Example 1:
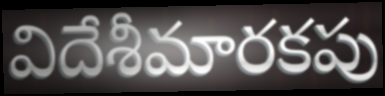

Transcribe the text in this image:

విదేశీమారకపు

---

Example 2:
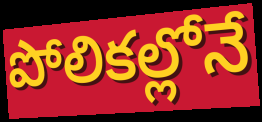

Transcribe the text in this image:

పోలికల్లోనే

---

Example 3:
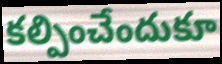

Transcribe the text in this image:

కల్పించేందుకూ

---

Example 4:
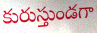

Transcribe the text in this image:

కురుస్తుండగా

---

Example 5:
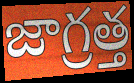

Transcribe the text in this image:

జాగ్రత్త